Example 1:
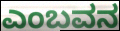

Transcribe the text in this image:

ಎಂಬವನ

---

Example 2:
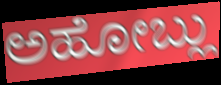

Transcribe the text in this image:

ಅಹೋಬ್ಲು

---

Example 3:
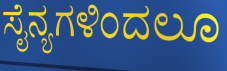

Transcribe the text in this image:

ಸೈನ್ಯಗಳಿಂದಲೂ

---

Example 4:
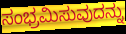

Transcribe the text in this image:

ಸಂಭ್ರಮಿಸುವುದನ್ನು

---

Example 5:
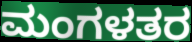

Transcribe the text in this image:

ಮಂಗಳತರ